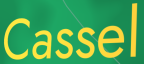
Cassel